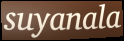
suyanala